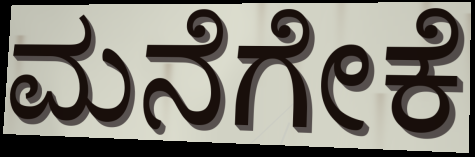
ಮನೆಗೇಕೆ